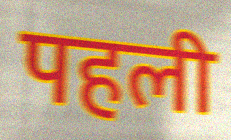
पहली